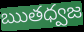
ఋతధ్వజ